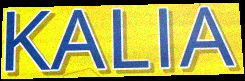
KALIA